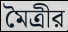
মৈত্রীর